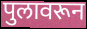
पुलावरून